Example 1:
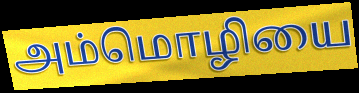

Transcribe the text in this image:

அம்மொழியை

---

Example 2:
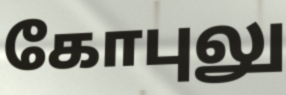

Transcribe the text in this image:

கோபுலு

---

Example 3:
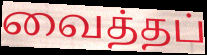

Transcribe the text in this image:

வைத்தப்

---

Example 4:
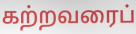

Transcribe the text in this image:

கற்றவரைப்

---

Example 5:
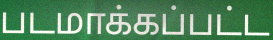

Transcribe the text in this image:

படமாக்கப்பட்ட